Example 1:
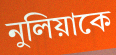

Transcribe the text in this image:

নুলিয়াকে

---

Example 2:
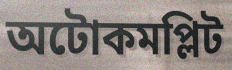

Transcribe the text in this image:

অটোকমপ্লিট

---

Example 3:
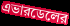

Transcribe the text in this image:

এভারডেলের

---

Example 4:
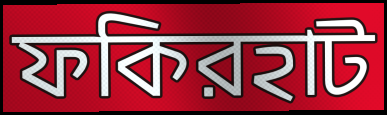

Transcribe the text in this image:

ফকিরহাট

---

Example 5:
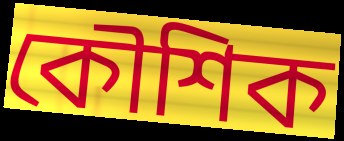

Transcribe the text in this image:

কৌশিক